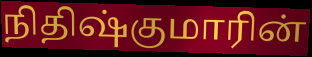
நிதிஷ்குமாரின்